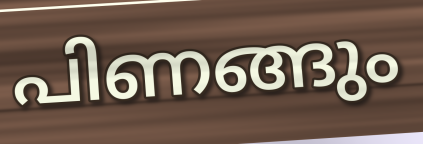
പിണങ്ങും